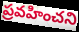
ప్రవహించని